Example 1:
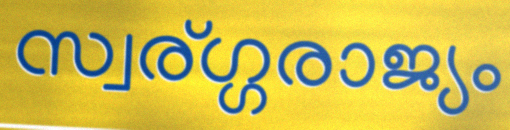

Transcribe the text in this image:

സ്വര്ഗ്ഗരാജ്യം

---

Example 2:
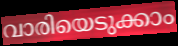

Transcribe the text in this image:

വാരിയെടുക്കാം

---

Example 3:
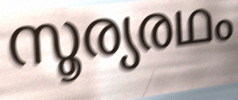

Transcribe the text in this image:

സൂര്യരഥം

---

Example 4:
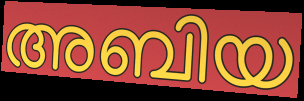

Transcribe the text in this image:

അബിയ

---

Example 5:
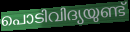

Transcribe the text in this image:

പൊടിവിദ്യയുണ്ട്